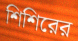
শিশিরের